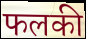
फलकी